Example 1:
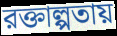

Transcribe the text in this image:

রক্তাল্পতায়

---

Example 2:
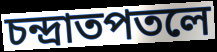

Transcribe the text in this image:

চন্দ্রাতপতলে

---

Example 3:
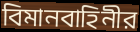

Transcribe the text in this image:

বিমানবাহিনীর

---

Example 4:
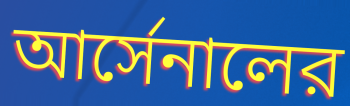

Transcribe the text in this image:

আর্সেনালের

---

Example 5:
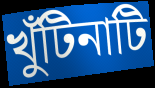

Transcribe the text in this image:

খুঁটিনাটি